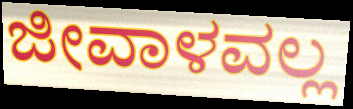
ಜೀವಾಳವಲ್ಲ